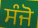
ਸੰਜੋ